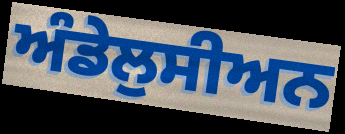
ਅੰਡੇਲੁਸੀਅਨ